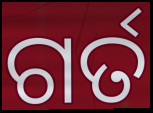
ଗର୍ତ